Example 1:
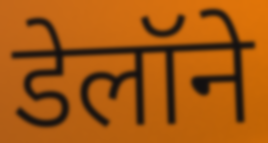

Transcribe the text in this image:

डेलॉने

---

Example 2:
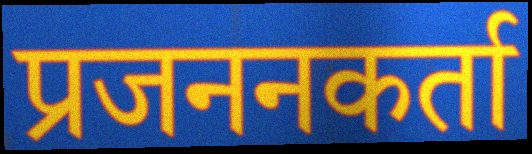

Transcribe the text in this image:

प्रजननकर्ता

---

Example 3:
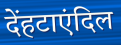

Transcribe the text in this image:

देंहटाएंदिल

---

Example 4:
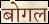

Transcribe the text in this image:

बोगल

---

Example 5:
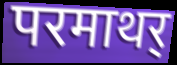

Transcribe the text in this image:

परमाथर्